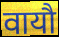
वायौ